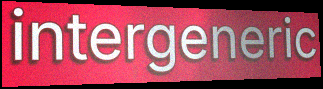
intergeneric